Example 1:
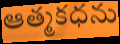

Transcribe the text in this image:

ఆత్మకధను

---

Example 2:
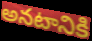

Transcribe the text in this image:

అనటానికి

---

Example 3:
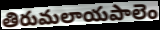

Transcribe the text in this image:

తిరుమలాయపాలెం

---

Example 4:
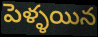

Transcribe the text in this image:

పెళ్ళయిన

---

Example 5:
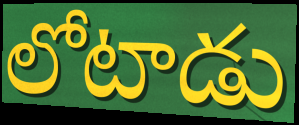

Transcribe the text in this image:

లోటాడు